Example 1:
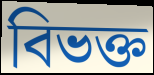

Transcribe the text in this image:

বিভক্ত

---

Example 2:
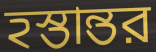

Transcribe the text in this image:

হস্তান্তর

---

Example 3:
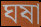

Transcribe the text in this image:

ঘষা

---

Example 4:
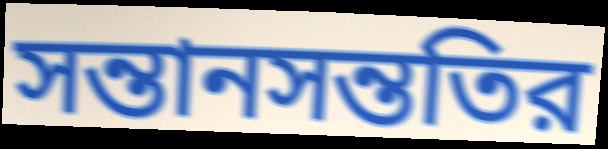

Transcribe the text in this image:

সন্তানসন্ততির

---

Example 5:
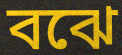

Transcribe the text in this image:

বঝে